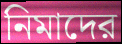
নিমাদের